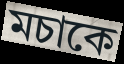
মচাকে